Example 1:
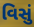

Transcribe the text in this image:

વિસું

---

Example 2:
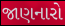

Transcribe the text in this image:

જાણનારો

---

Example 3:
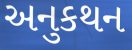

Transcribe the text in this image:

અનુકથન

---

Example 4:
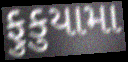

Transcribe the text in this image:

ફુકુયામા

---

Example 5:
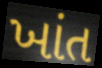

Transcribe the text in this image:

ખાંત